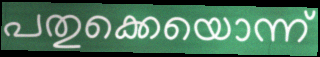
പതുക്കെയൊന്ന്